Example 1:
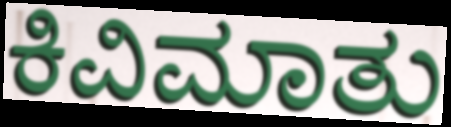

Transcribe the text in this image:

ಕಿವಿಮಾತು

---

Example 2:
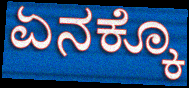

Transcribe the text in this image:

ಏನಕ್ಕೊ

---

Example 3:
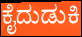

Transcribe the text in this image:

ಕೈದುಡುಕಿ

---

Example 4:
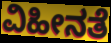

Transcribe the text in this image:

ವಿಹೀನತೆ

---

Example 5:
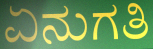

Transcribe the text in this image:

ಏನುಗತಿ